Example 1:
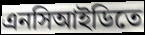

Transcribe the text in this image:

এনসিআইডিতে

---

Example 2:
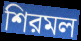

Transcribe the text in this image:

শিরমল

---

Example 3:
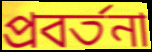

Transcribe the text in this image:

প্রবর্তনা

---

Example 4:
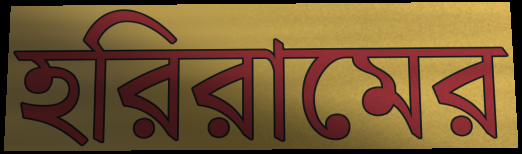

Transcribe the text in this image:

হরিরামের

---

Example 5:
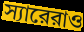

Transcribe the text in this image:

স্যারেরাও